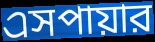
এসপায়ার